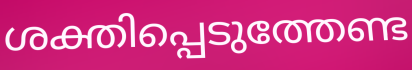
ശക്തിപ്പെടുത്തേണ്ട